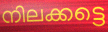
നിലക്കട്ടെ